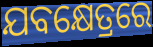
ଯବକ୍ଷେତ୍ରରେ